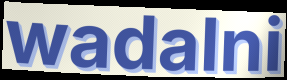
wadalni